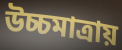
উচ্চমাত্রায়